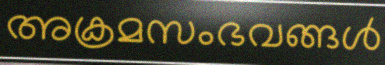
അക്രമസംഭവങ്ങൾ